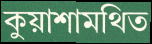
কুয়াশামথিত